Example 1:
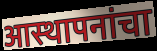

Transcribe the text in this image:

आस्थापनांचा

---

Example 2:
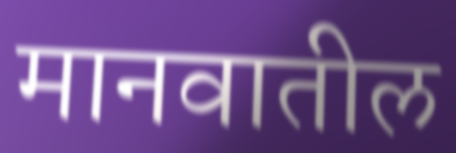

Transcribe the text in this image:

मानवातील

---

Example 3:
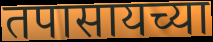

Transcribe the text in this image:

तपासायच्या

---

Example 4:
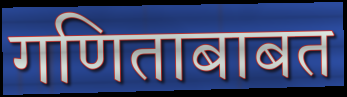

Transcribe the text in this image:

गणिताबाबत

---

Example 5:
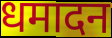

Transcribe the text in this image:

धमादन